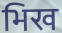
भिख